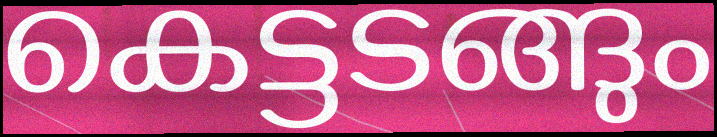
കെട്ടടങ്ങും